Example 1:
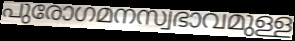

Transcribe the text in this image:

പുരോഗമനസ്വഭാവമുള്ള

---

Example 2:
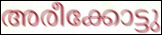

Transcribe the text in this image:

അരീക്കോട്ടു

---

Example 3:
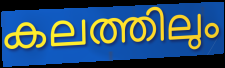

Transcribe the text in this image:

കലത്തിലും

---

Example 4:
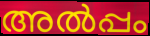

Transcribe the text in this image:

അൽപ്പം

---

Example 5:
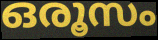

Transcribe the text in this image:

ഒരൂസം